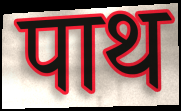
पाथ